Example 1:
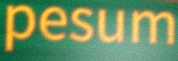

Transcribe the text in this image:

pesum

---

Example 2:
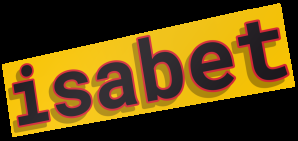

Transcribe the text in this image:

isabet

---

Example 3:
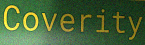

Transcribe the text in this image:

Coverity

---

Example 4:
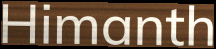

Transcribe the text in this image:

Himanth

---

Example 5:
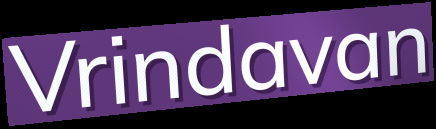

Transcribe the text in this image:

Vrindavan